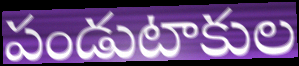
పండుటాకుల